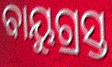
ବାୟୁଗ୍ରସ୍ତ